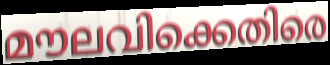
മൗലവിക്കെതിരെ